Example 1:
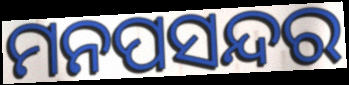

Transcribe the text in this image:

ମନପସନ୍ଦର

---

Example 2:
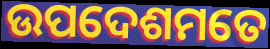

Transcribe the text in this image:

ଉପଦେଶମତେ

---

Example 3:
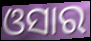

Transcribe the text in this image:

ଓସାର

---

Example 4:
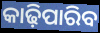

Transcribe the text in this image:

କାଢ଼ିପାରିବ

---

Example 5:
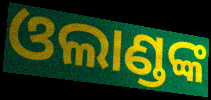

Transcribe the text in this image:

ଓଲାଣ୍ଡଙ୍କ